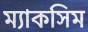
ম্যাকসিম